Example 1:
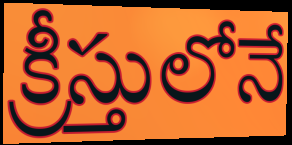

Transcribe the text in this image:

క్రీస్తులోనే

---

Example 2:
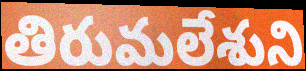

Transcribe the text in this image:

తిరుమలేశుని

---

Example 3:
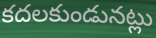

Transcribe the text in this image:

కదలకుండునట్లు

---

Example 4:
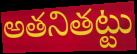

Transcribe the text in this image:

అతనితట్టు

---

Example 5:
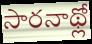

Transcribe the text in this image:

సారనాథ్లో